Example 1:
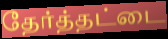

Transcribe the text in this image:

தேர்த்தட்டை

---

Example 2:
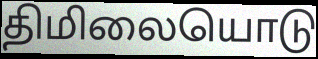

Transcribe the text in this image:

திமிலையொடு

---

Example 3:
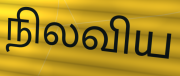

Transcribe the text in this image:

நிலவிய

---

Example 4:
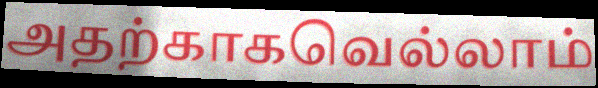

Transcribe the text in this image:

அதற்காகவெல்லாம்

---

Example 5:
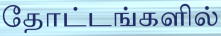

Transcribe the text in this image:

தோட்டங்களில்